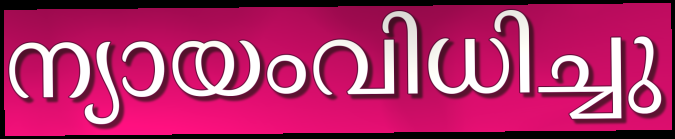
ന്യായംവിധിച്ചു